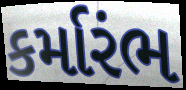
કર્મારંભ